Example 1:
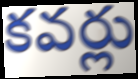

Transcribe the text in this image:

కవర్లు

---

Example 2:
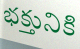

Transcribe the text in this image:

భక్తునికి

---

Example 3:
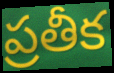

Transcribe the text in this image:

ప్రతీక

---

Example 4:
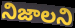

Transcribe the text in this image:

నిజాలని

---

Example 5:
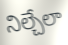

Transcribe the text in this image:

నిల్చేలా